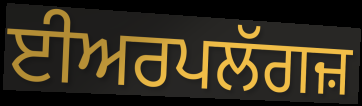
ਈਅਰਪਲੱਗਜ਼